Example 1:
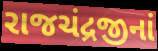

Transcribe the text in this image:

રાજચંદ્રજીનાં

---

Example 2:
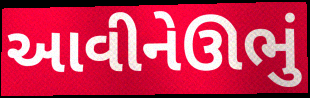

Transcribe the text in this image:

આવીનેઊભું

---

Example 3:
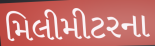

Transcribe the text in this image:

મિલીમીટરના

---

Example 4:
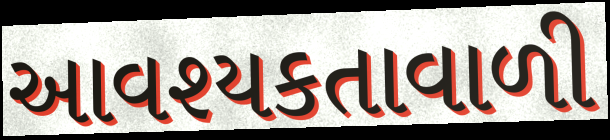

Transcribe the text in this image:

આવશ્યકતાવાળી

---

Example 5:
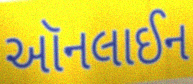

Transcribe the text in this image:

ઑનલાઈન